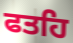
ਫਤਹਿ